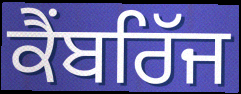
ਕੈਂਬਰਿੱਜ